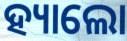
ହ୍ୟାଲୋ